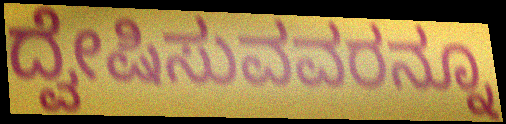
ದ್ವೇಷಿಸುವವರನ್ನೂ